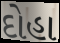
દોહા